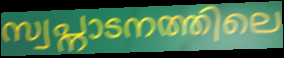
സ്വപ്നാടനത്തിലെ